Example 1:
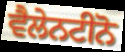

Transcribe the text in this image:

ਵੈਲੇਨਟੀਨੋ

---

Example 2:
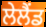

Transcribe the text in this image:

ਲੇਲੈਂਡ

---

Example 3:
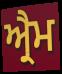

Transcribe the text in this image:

ਐ੍ਰਮ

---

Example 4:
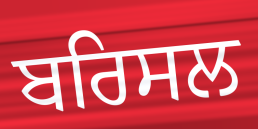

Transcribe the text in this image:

ਬਰਿਸਲ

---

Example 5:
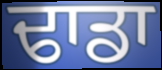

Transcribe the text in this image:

ਢਾਡਾ